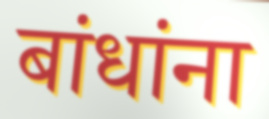
बांधांना